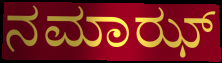
ನಮಾಝ್